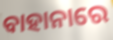
ବାହାନାରେ